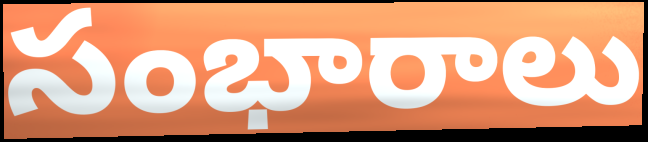
సంభారాలు